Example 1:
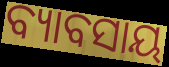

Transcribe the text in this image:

ବ୍ୟାବସାୟ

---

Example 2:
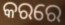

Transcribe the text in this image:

କରରେ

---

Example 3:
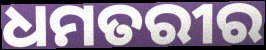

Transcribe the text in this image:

ଧମତରୀର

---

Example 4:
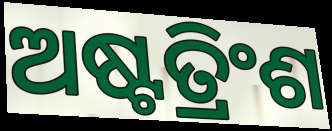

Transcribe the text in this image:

ଅଷ୍ଟତ୍ରିଂଶ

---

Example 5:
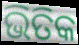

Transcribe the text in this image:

ଭିତିକ